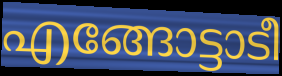
എങ്ങോട്ടാടീ